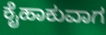
ಕೈಹಾಕುವಾಗ